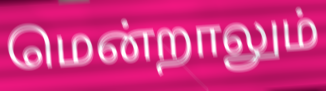
மென்றாலும்